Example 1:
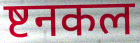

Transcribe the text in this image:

ष्टनकल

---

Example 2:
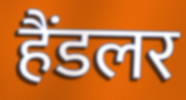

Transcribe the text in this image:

हैंडलर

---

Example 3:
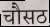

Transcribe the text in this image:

चौसठ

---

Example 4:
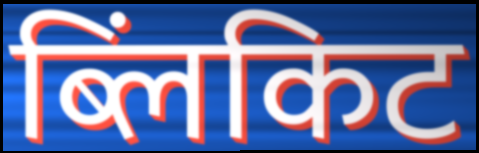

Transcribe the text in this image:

ब्लिंकिट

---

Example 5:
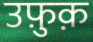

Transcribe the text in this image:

उफ़ुक़